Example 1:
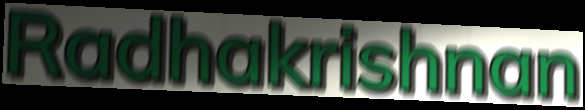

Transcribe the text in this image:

Radhakrishnan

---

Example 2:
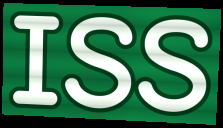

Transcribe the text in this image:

ISS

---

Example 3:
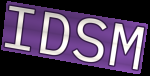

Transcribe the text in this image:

IDSM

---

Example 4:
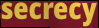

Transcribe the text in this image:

secrecy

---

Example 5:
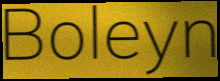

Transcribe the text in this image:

Boleyn